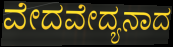
ವೇದವೇದ್ಯನಾದ